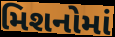
મિશનોમાં